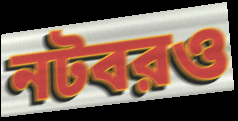
নটবরও